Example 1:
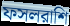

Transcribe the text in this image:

ফসলরাশি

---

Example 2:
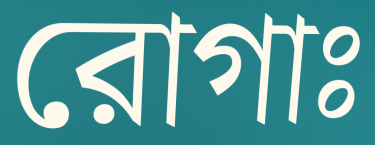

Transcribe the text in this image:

রোগাঃ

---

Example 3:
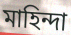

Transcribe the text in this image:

মাহিন্দা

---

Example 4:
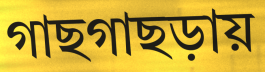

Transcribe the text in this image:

গাছগাছড়ায়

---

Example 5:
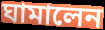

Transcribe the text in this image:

ঘামালেন